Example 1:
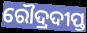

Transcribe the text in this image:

ରୌଦ୍ରଦୀପ୍ତ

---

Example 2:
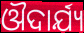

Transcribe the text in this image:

ଔଦାର୍ଯ୍ୟ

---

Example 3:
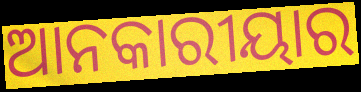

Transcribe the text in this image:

ଆନକାରୀୟାର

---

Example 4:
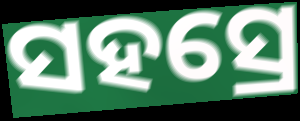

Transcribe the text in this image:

ସହସ୍ରେ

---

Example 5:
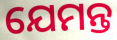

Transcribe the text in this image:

ଯେମନ୍ତ